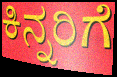
ಕಿನ್ನರಿಗೆ